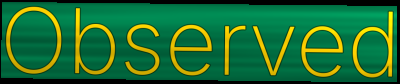
Observed